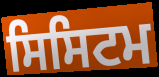
ਸਿਸਿਟਮ